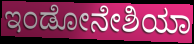
ಇಂಡೋನೇಶಿಯಾ